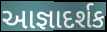
આજ્ઞાદર્શક